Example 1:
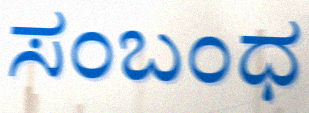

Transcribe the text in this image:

ಸಂಬಂಧ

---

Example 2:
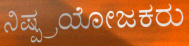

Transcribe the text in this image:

ನಿಷ್ಪ್ರಯೋಜಕರು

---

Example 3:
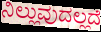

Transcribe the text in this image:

ನಿಲ್ಲುವುದಲ್ಲದೆ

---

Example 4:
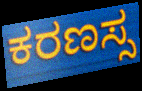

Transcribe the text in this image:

ಕರಣಸ್ಸ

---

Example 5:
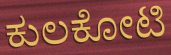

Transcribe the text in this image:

ಕುಲಕೋಟಿ